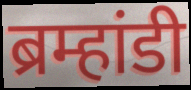
ब्रम्हांडी